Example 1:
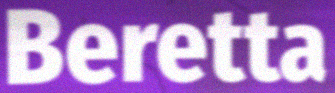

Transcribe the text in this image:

Beretta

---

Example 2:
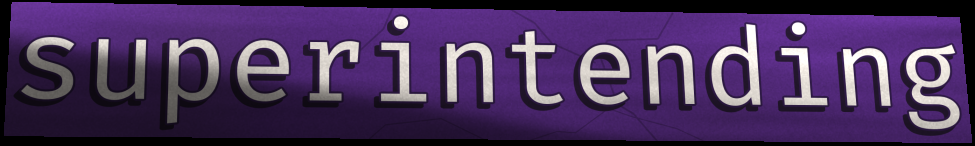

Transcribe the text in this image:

superintending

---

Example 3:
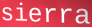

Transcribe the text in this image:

sierra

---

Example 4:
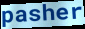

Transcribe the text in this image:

pasher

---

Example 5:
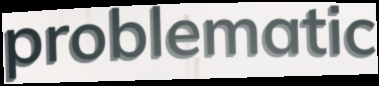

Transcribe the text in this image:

problematic